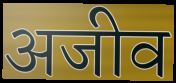
अजीव